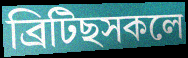
ব্ৰিটিছসকলে